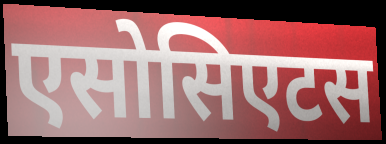
एसोसिएटस